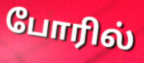
போரில்